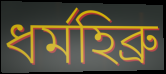
ধৰ্মহিব্ৰু